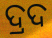
ଦ୍ରଦ